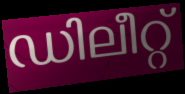
ഡിലീറ്റ്